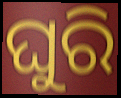
ଘୁରି